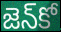
జెన్‌కో